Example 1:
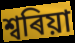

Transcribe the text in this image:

শ্বৰিয়া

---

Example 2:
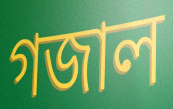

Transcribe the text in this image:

গজাল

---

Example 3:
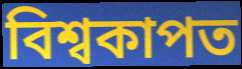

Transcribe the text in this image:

বিশ্বকাপত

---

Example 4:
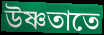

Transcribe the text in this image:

উষ্ণতাতে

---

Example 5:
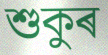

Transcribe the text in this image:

শুকুৰ